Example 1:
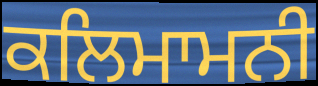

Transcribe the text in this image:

ਕਲਿਮਾਮਨੀ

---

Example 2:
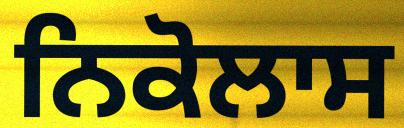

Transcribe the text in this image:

ਨਿਕੋਲਾਸ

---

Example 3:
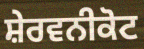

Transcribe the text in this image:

ਸ਼ੇਰਵਨੀਕੋਟ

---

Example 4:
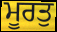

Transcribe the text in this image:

ਮੂਰਤੁ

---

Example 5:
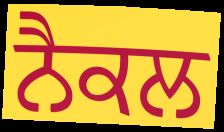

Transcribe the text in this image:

ਨੈਕਲ